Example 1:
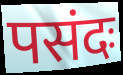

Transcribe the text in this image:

पसंदः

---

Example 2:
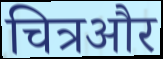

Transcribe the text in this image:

चित्रऔर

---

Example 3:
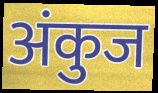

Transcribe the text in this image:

अंकुज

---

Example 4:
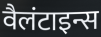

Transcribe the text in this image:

वैलंटाइन्स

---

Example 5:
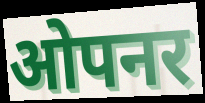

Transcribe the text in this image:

ओपनर